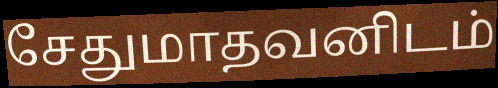
சேதுமாதவனிடம்